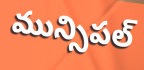
మున్సిపల్